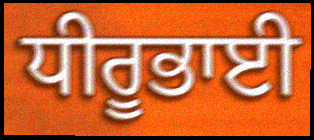
ਧੀਰੂਭਾਈ